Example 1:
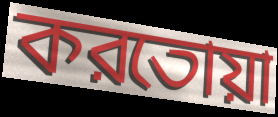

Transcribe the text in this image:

করতোয়া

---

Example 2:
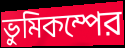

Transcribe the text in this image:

ভুমিকম্পের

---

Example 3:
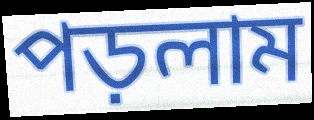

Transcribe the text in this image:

পড়লাম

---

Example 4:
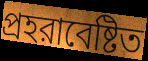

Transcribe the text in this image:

প্রহরাবেষ্টিত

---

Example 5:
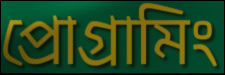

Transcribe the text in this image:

প্রোগ্রামিং